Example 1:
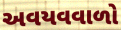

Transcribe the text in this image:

અવયવવાળો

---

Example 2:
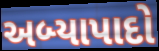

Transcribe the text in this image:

અબ્યાપાદો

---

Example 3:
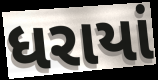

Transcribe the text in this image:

ધરાયાં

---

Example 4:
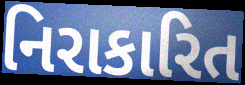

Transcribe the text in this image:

નિરાકારિત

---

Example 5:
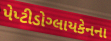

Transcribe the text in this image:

પેપ્ટીડોગ્લાયકેનના